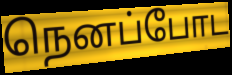
நெனப்போட